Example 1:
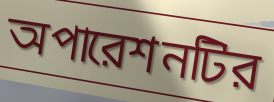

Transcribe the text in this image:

অপারেশনটির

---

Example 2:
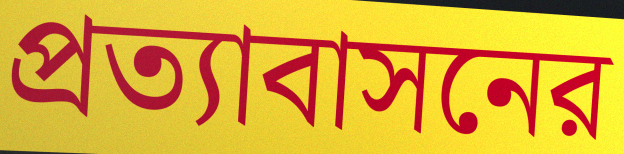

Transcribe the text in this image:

প্রত্যাবাসনের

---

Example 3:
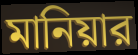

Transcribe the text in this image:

মানিয়ার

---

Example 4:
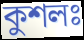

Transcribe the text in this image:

কুশলঃ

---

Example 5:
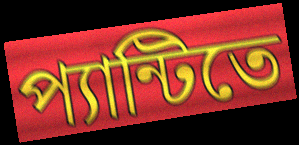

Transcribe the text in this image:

প্যান্টিতে